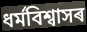
ধৰ্মবিশ্বাসৰ